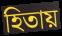
হিতায়